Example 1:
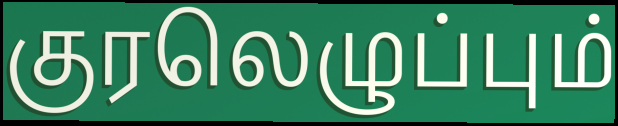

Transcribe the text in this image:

குரலெழுப்பும்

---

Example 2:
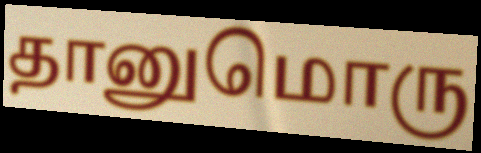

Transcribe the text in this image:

தானுமொரு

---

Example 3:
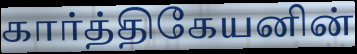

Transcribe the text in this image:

கார்த்திகேயனின்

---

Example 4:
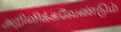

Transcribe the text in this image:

அறிவிக்கவேண்டும்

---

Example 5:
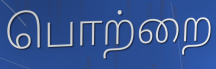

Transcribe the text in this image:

பொற்றை